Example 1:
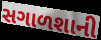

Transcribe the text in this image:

સગાળશાની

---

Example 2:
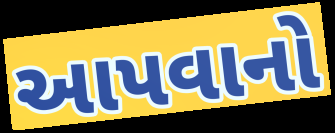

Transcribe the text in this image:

આપવાનો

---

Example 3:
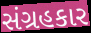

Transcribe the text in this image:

સંગ્રહકાર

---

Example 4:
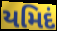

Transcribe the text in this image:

યમિદં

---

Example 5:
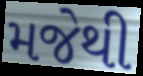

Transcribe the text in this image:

મજેથી